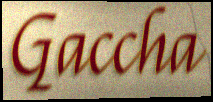
Gaccha